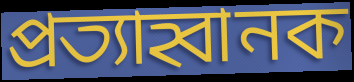
প্ৰত্যাহ্বানক